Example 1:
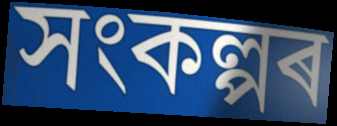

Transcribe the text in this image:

সংকল্পৰ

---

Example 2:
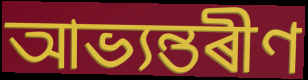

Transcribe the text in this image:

আভ্যন্তৰীণ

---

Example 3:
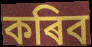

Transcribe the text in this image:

কৰিব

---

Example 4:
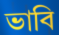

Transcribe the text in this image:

ভাবি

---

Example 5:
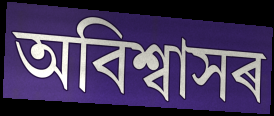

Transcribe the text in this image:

অবিশ্বাসৰ